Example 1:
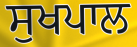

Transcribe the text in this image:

ਸੁਖਪਾਲ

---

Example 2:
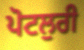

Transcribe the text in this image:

ਪੋਟਲੁਰੀ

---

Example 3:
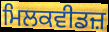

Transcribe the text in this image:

ਮਿਲਕਵੀਡਜ਼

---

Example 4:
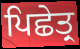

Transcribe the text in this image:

ਪਿਛੇਤ੍ਰ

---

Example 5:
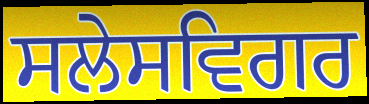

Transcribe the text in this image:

ਸਲੇਸਵਿਗਰ